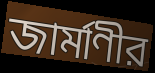
জার্মাণীর